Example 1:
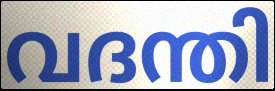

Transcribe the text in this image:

വദന്തി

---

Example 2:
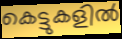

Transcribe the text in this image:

കെട്ടുകളിൽ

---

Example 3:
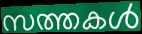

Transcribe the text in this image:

സത്തകൾ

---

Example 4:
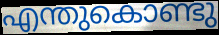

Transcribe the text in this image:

എന്തുകൊണ്ടു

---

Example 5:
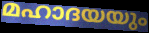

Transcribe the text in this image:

മഹാദയയും